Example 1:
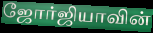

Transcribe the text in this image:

ஜோர்ஜியாவின்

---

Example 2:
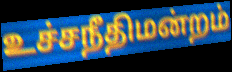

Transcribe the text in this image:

உச்சநீதிமன்றம்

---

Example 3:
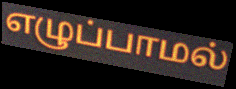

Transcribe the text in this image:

எழுப்பாமல்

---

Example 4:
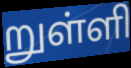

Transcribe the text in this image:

றுள்ளி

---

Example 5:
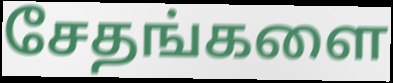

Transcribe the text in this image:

சேதங்களை